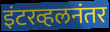
इंटरव्हलनंतर